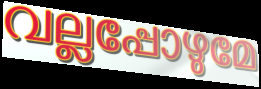
വല്ലപ്പോഴുമേ